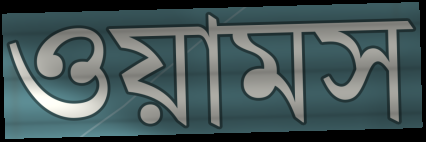
ওয়ামস